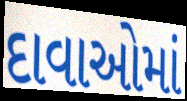
દાવાઓમાં